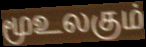
மூஉலகும்